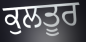
ਕੁਲਤੂਰ